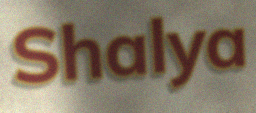
Shalya